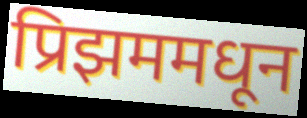
प्रिझममधून